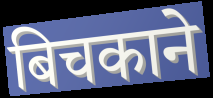
बिचकाने